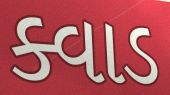
ક્વાડ